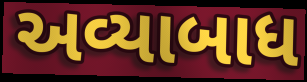
અવ્યાબાધ